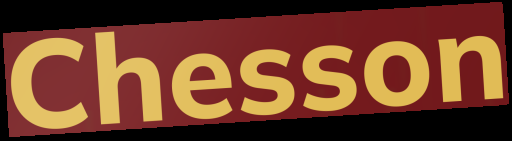
Chesson